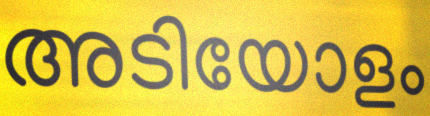
അടിയോളം